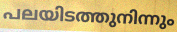
പലയിടത്തുനിന്നും